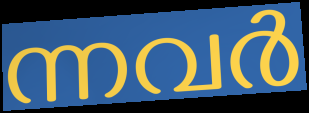
ന്നവർ